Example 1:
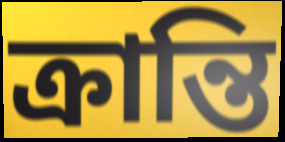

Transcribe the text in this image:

ক্রান্তি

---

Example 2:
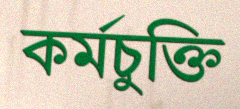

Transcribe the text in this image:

কর্মচুক্তি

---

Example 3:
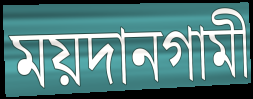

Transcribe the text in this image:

ময়দানগামী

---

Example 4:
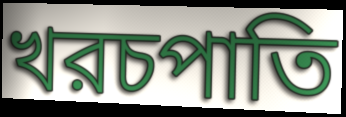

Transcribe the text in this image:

খরচপাতি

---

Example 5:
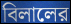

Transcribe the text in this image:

বিলালের